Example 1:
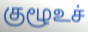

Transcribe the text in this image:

குழூஉச்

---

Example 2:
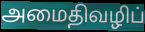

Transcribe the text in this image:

அமைதிவழிப்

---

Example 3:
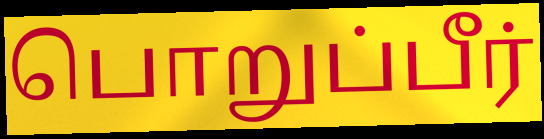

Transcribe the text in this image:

பொறுப்பீர்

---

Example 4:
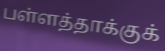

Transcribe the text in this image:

பள்ளத்தாக்குக்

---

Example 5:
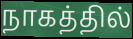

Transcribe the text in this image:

நாகத்தில்